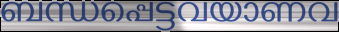
ബന്ധപ്പെട്ടവയാണവ